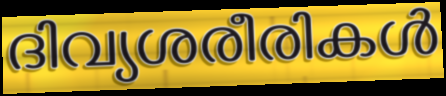
ദിവ്യശരീരികൾ